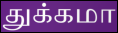
துக்கமா